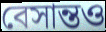
বেসান্তও